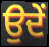
ਉਦੇਂ